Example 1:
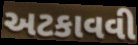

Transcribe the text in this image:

અટકાવવી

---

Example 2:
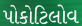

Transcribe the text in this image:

પોકોટિલોવ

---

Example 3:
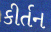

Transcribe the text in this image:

કીર્તન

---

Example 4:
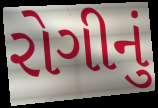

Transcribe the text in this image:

રોગીનું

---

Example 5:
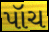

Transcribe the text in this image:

પૉચ